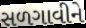
સળગાવીને